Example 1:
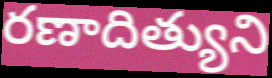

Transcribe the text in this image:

రణాదిత్యుని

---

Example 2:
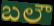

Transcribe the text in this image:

బలౌ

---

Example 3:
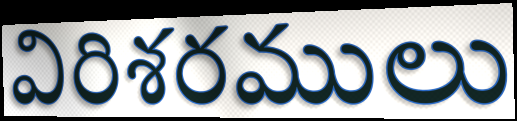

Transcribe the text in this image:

విరిశరములు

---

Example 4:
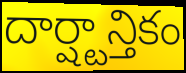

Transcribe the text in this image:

దార్ష్టాన్తికం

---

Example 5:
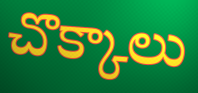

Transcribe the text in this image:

చొక్కాలు